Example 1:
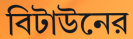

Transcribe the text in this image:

বিটাউনের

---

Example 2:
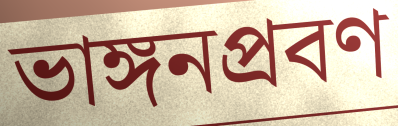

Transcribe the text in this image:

ভাঙ্গনপ্রবণ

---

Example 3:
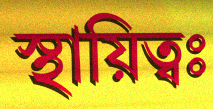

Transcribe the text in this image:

স্থায়িত্বঃ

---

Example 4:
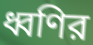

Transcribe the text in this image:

ধ্বণির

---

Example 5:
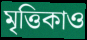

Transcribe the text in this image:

মৃত্তিকাও